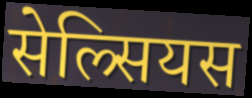
सेल्सियस